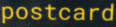
postcard